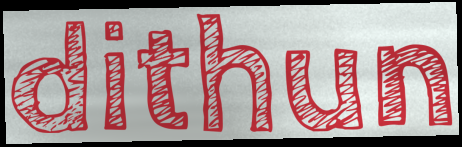
dithun